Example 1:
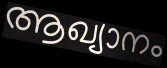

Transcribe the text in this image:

ആഖ്യാനം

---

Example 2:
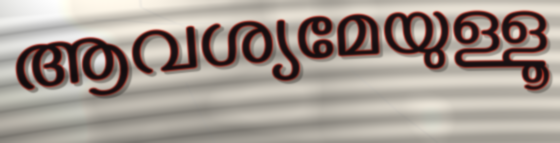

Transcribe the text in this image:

ആവശ്യമേയുള്ളൂ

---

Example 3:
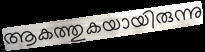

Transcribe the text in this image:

ആകത്തുകയായിരുന്നു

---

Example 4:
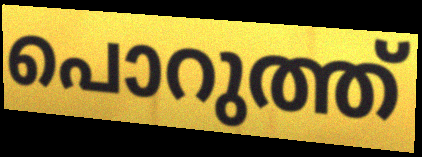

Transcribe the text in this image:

പൊറുത്ത്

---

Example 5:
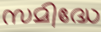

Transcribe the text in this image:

സമിദ്ധേ